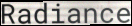
Radiance